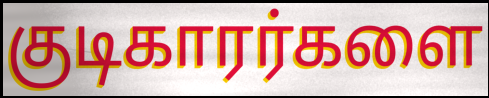
குடிகாரர்களை